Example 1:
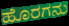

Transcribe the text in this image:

ಹೊರಗನು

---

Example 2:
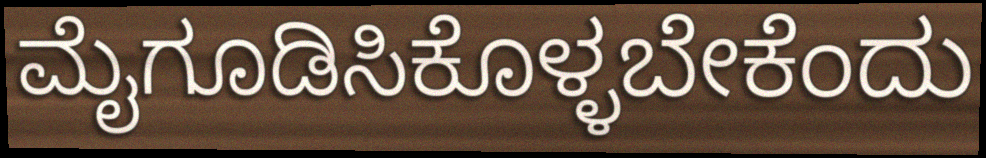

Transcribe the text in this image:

ಮೈಗೂಡಿಸಿಕೊಳ್ಳಬೇಕೆಂದು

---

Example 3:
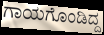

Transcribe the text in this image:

ಗಾಯಗೊಂಡಿದ್ದ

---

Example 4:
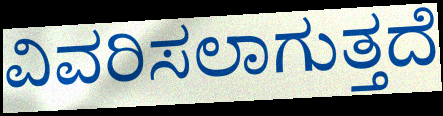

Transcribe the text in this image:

ವಿವರಿಸಲಾಗುತ್ತದೆ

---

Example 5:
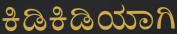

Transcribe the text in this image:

ಕಿಡಿಕಿಡಿಯಾಗಿ